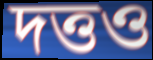
দত্তও